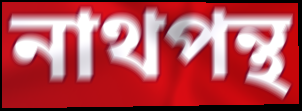
নাথপন্থ